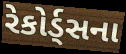
રેકોર્ડ્સના